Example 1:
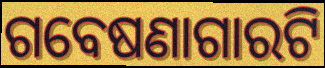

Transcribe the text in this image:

ଗବେଷଣାଗାରଟି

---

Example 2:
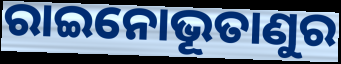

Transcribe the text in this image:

ରାଇନୋଭୂତାଣୁର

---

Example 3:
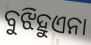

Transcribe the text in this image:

ବୁଝିହୁଏନା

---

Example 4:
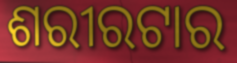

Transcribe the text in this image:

ଶରୀରଟାର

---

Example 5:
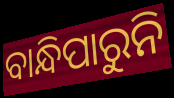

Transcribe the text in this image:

ବାନ୍ଧିପାରୁନି